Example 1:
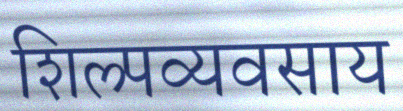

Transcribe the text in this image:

शिल्पव्यवसाय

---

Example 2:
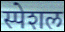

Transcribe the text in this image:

स्पेशल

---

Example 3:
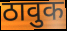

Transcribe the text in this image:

ठावुक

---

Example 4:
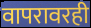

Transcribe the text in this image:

वापरावरही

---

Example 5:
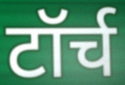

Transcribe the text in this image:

टॉर्च